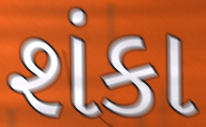
શંકા